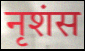
नृशंस